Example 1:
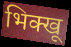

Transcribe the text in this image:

भिक्खू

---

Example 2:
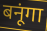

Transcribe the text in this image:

बनूंगा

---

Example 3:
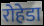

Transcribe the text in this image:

रोहेडा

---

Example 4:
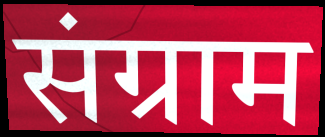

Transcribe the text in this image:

संग्राम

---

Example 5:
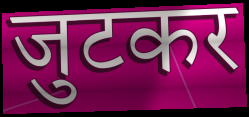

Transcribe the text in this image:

जुटकर